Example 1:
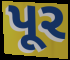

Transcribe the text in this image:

પૂર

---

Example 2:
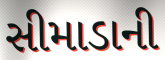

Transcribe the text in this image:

સીમાડાની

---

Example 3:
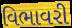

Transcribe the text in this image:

વિભાવરી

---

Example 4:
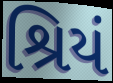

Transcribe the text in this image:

શ્રિયં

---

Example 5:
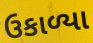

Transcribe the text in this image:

ઉકાળ્યા